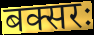
बक्सरः